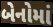
બેનોમાં